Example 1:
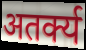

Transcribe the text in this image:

अतर्क्य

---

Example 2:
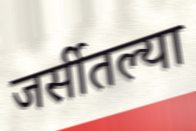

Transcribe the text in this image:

जर्सीतल्या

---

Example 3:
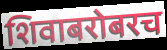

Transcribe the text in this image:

शिवाबरोबरच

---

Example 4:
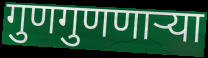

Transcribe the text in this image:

गुणगुणणाऱ्या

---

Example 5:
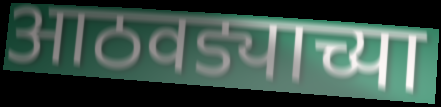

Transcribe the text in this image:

आठवड्याच्या